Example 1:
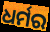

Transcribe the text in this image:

ଧର୍ମର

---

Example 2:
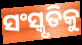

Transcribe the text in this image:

ସଂସ୍କୃତିକୁ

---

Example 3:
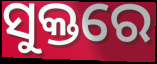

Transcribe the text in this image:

ସୁକ୍ତରେ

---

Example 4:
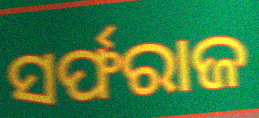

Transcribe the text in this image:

ସର୍ଫରାଜ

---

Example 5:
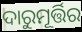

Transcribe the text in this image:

ଦାରୁମୂର୍ତ୍ତିର